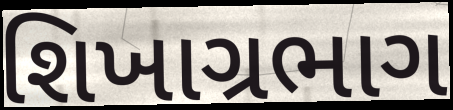
શિખાગ્રભાગ